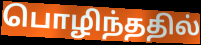
பொழிந்ததில்